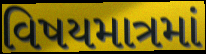
વિષયમાત્રમાં